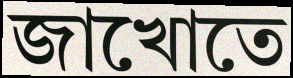
জাখোতে